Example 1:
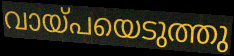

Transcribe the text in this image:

വായ്പയെടുത്തു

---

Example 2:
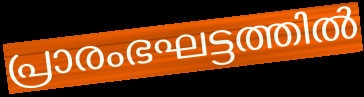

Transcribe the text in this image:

പ്രാരംഭഘട്ടത്തിൽ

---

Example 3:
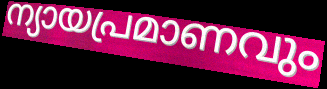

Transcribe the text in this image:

ന്യായപ്രമാണവും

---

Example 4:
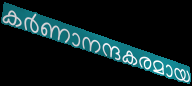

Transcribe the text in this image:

കർണാനന്ദകരമായ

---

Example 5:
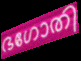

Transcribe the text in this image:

ഭഗോതി